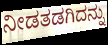
ನೀಡತಡಗಿದನ್ನು